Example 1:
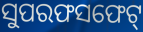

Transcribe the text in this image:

ସୁପରଫସଫେଟ୍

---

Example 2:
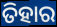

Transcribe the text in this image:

ତିହାର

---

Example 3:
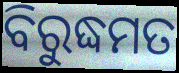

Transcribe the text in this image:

ବିରୁଦ୍ଧମତ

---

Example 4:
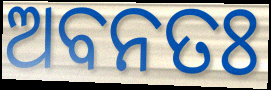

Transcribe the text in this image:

ଅବନତଃ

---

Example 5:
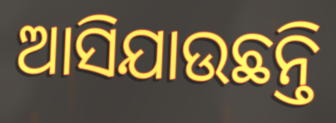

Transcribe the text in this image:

ଆସିଯାଉଛନ୍ତି